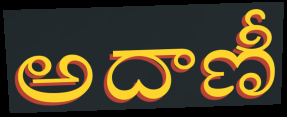
అదాణీ